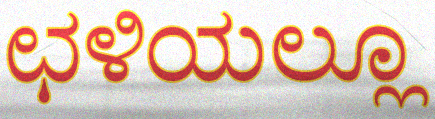
ಛಳಿಯಲ್ಲೂ